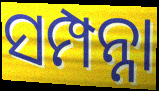
ସମ୍ପନ୍ନା